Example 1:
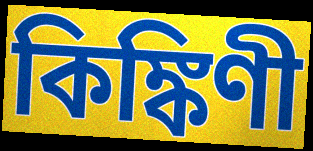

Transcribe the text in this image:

কিঙ্কিণী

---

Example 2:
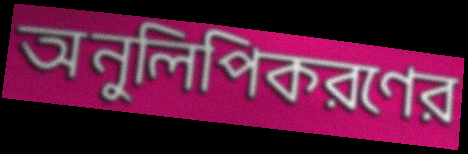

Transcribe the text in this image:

অনুলিপিকরণের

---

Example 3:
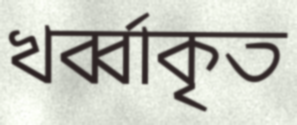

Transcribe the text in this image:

খর্ব্বাকৃত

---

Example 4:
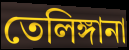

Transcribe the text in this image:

তেলিঙ্গানা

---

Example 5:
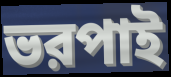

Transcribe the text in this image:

ভরপাই